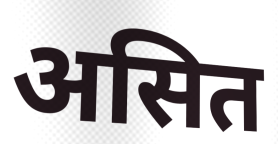
असित